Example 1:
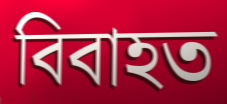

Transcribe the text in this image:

বিবাহত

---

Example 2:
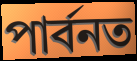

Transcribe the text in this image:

পাৰ্বনত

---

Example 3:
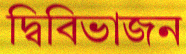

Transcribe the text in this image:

দ্বিবিভাজন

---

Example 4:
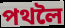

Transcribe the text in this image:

পথলৈ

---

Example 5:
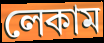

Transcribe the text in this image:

লেকাম